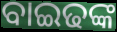
ବାଇଢଙ୍କ